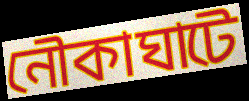
নৌকাঘাটে